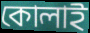
কোলাই